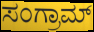
ಸಂಗ್ರಾಮ್